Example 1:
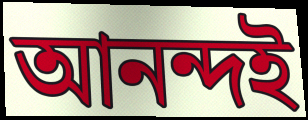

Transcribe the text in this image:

আনন্দই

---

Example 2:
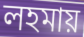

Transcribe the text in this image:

লহমায়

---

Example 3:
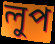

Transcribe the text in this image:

লুপ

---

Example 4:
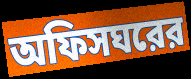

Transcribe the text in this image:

অফিসঘরের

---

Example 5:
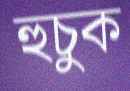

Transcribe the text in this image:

হুচুক